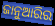
ଜାନୁଆରିର